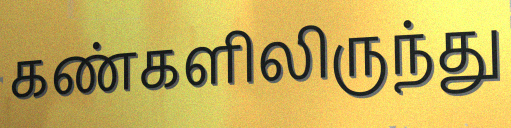
கண்களிலிருந்து